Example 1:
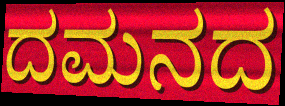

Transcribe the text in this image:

ದಮನದ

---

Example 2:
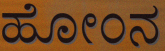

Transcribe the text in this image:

ಹೋಂನ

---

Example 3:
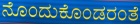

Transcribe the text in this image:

ನೊಂದುಕೊಂಡರಂತೆ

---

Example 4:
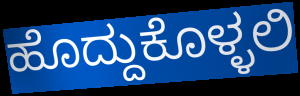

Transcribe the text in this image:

ಹೊದ್ದುಕೊಳ್ಳಲಿ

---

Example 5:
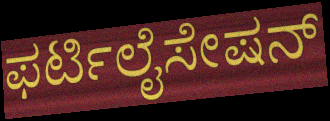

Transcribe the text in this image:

ಫರ್ಟಿಲೈಸೇಷನ್